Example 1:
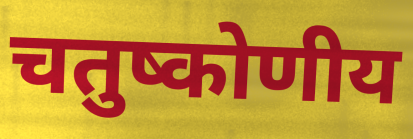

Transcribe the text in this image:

चतुष्कोणीय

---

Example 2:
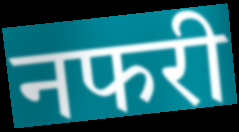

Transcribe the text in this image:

नफरी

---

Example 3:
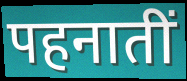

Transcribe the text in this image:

पहनातीं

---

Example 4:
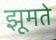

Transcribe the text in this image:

झूमते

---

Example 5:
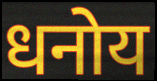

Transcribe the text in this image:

धनोय